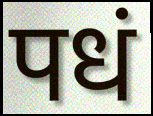
पधं